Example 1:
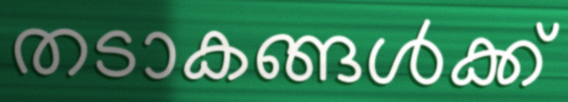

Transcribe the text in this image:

തടാകങ്ങൾക്ക്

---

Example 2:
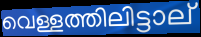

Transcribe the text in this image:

വെള്ളത്തിലിട്ടാല്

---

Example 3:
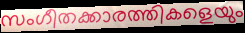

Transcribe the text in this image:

സംഗീതക്കാരത്തികളെയും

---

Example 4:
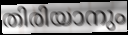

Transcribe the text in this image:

തിരിയാനും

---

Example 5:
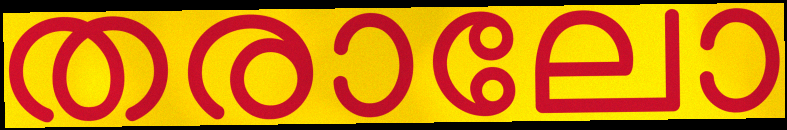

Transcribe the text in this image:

തരാലോ